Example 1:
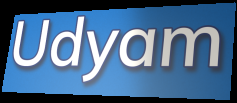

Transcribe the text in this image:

Udyam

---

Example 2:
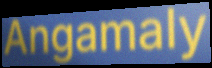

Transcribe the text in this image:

Angamaly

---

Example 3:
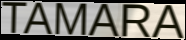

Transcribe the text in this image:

TAMARA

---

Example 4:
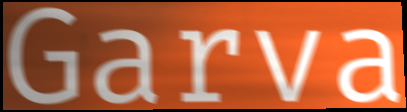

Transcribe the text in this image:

Garva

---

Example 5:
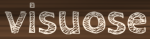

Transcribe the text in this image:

visuose